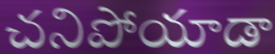
చనిపోయాడా